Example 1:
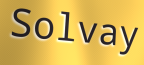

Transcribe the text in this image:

Solvay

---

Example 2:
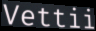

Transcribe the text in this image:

Vettii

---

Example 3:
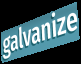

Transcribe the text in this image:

galvanize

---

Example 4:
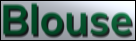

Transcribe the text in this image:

Blouse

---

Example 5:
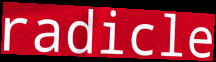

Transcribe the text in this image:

radicle